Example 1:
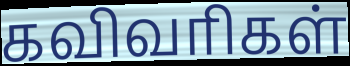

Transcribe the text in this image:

கவிவரிகள்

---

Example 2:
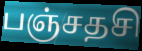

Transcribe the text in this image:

பஞ்சதசி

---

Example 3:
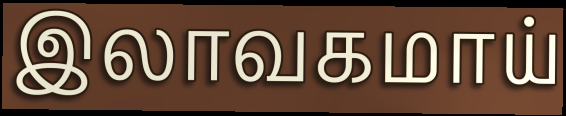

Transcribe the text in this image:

இலாவகமாய்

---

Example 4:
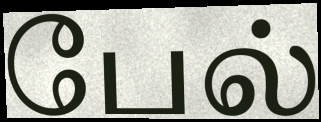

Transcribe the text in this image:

பேல்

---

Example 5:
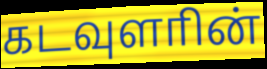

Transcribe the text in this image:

கடவுளரின்